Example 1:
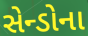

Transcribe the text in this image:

સેન્ડોના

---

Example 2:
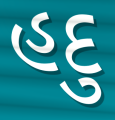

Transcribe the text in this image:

હદુ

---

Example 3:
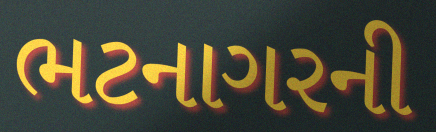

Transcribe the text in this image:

ભટનાગરની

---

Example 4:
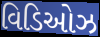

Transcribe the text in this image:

વિડિઓઝ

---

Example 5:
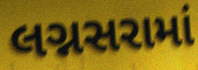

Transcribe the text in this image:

લગ્નસરામાં